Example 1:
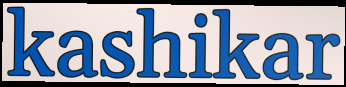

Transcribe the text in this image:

kashikar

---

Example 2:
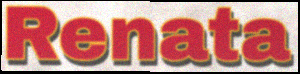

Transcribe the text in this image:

Renata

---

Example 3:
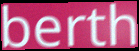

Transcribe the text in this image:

berth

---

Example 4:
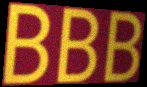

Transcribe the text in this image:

BBB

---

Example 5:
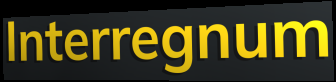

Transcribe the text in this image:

Interregnum